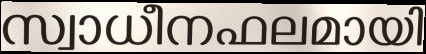
സ്വാധീനഫലമായി